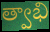
త్వాభి